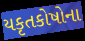
યકૃતકોષોના